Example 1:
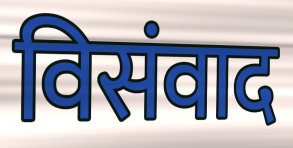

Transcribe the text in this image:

विसंवाद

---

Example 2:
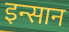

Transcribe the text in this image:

इन्सान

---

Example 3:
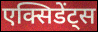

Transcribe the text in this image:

एक्सिडेंट्स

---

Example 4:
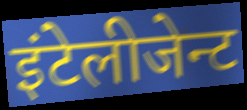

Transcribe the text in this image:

इंटेलीजेन्ट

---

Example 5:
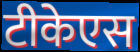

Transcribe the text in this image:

टीकेएस